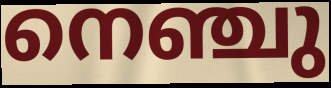
നെഞ്ചു